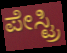
ಪೇಸ್ಟ್ರಿ